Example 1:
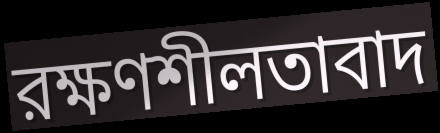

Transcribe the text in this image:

রক্ষণশীলতাবাদ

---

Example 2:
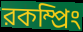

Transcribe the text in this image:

রকম্প্রিং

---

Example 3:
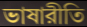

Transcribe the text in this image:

ভাষারীতি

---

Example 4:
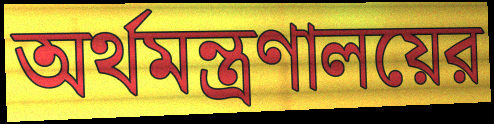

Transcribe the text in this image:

অর্থমন্ত্রণালয়ের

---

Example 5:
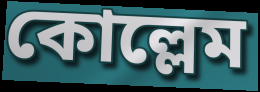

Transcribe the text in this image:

কোল্লেম